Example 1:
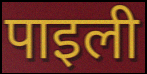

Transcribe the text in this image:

पाइली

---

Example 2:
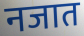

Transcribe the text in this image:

नजात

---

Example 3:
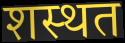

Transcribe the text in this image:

शस्थत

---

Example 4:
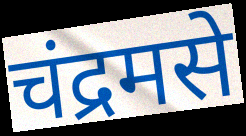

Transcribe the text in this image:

चंद्रमसे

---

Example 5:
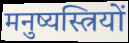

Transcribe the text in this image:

मनुष्यस्त्रियों